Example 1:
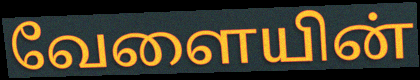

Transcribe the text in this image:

வேளையின்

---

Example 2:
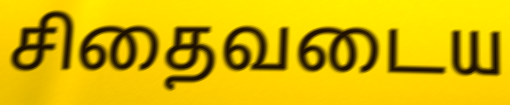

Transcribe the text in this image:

சிதைவடைய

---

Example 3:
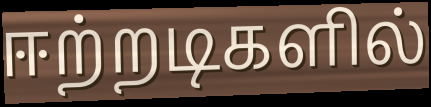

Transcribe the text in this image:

ஈற்றடிகளில்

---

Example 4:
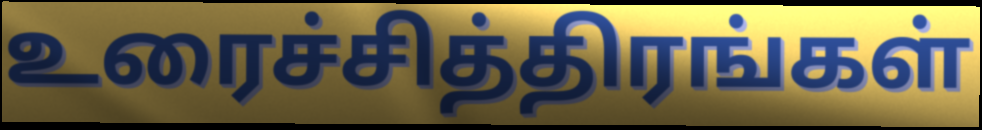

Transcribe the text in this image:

உரைச்சித்திரங்கள்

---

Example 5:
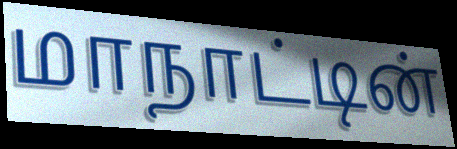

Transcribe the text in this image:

மாநாட்டின்